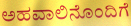
ಅಹವಾಲಿನೊಂದಿಗೆ